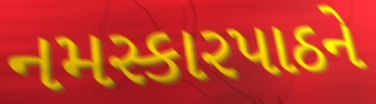
નમસ્કારપાઠને